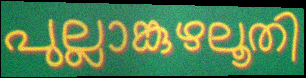
പുല്ലാങ്കുഴലൂതി